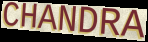
CHANDRA